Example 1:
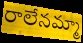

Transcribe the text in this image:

రాలేనమ్మా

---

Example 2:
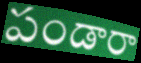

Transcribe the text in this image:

పండారా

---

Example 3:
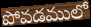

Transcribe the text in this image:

పోవడములో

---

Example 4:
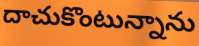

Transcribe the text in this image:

దాచుకొంటున్నాను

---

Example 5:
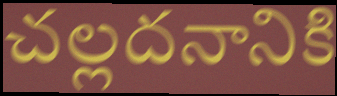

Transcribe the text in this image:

చల్లదనానికి